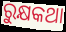
ରୁକ୍ଷକଥା